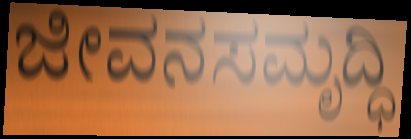
ಜೀವನಸಮೃದ್ಧಿ